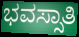
ಭವಸ್ಸಾತಿ